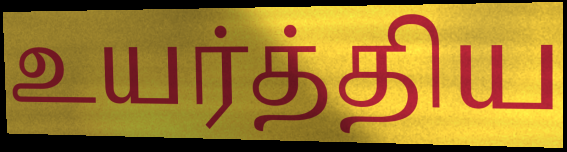
உயர்த்திய